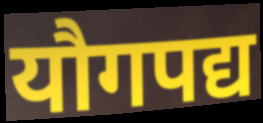
यौगपद्य